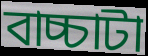
বাচ্চাটা